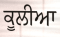
ਕੂਲੀਆ